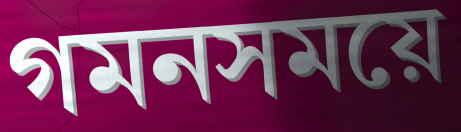
গমনসময়ে